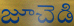
జూచెడి